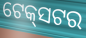
ଟେକ୍‌ସଟର